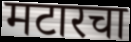
मटारचा